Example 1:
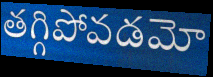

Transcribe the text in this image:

తగ్గిపోవడమో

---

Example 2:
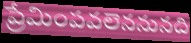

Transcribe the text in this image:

ప్రేమింపవలెననునది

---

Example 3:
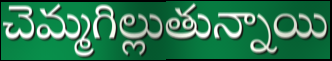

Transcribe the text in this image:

చెమ్మగిల్లుతున్నాయి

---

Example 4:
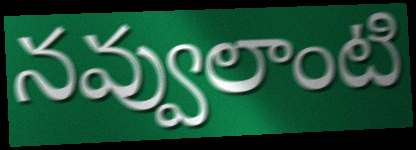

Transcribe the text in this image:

నవ్వులాంటి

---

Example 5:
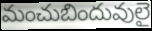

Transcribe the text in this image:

మంచుబిందువులై